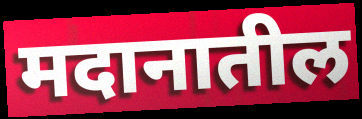
मदानातील